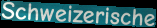
Schweizerische